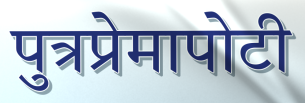
पुत्रप्रेमापोटी